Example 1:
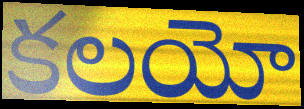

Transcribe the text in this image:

కలయో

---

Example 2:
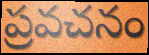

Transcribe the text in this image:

ప్రవచనం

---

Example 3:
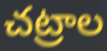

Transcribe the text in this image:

చట్రాల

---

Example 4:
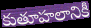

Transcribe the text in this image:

కుతూహలానికీ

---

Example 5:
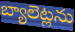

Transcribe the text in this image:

బ్యాలెట్లను